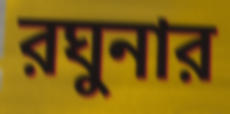
রঘুনার